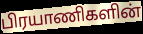
பிரயாணிகளின்